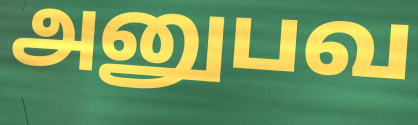
அனுபவ